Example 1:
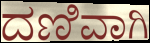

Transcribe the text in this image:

ದಣಿವಾಗಿ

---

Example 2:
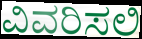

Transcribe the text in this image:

ವಿವರಿಸಲಿ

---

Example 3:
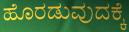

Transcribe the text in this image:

ಹೊರಡುವುದಕ್ಕೆ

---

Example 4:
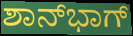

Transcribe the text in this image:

ಶಾನ್‍ಭಾಗ್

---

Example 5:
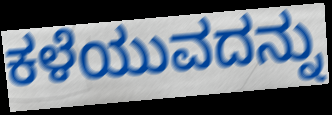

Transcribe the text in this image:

ಕಳೆಯುವದನ್ನು